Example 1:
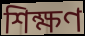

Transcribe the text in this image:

শিক্ষণ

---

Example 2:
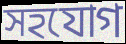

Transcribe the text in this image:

সহযোগ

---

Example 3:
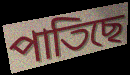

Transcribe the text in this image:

পাতিছে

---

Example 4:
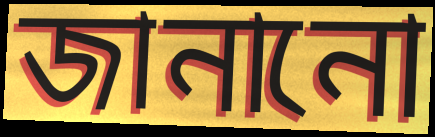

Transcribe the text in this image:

জানানো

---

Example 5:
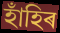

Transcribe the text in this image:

হাঁহিৰ